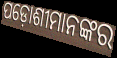
ପଡ଼ୋଶୀମାନଙ୍କର